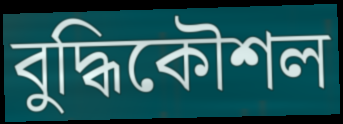
বুদ্ধিকৌশল